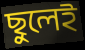
ছুলেই